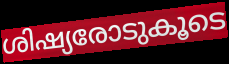
ശിഷ്യരോടുകൂടെ